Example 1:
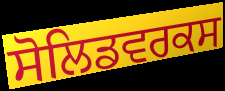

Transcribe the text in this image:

ਸੋਲਿਡਵਰਕਸ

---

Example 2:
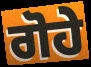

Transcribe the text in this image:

ਗੋਹੇ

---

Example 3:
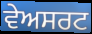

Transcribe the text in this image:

ਵੇਅਸਰਟ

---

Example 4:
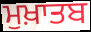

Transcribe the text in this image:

ਮੁਖ਼ਾਤਬ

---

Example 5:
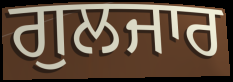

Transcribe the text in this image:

ਗੁਲਜਾਰ